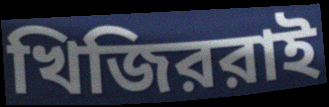
খিজিররাই